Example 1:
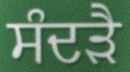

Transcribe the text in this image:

ਸੰਦੜੈ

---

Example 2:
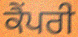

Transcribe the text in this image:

ਕੈਂਪਰੀ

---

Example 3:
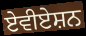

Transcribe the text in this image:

ਏਵੀਏਸ਼ਨ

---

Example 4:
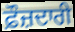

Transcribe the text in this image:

ਫ਼ੌਜ਼ਦਾਰੀ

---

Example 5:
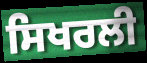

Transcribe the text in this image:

ਸਿਖਰਲੀ